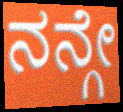
ನನ್ಗೇ